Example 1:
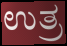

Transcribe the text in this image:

ಉತ್ರ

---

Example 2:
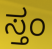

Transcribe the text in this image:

ಸ್ತಂ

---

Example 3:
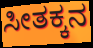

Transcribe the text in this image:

ಸೀತಕ್ಕನ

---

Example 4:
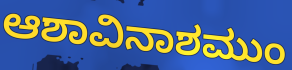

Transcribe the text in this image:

ಆಶಾವಿನಾಶಮುಂ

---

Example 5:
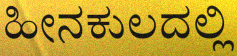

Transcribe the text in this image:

ಹೀನಕುಲದಲ್ಲಿ